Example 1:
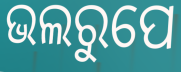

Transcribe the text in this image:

ଭଲରୁପେ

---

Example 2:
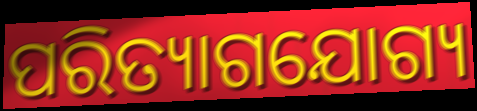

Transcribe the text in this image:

ପରିତ୍ୟାଗଯୋଗ୍ୟ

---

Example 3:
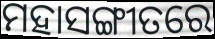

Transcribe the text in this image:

ମହାସଙ୍ଗୀତରେ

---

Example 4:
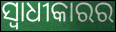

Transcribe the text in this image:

ସ୍ୱାଧୀକାରର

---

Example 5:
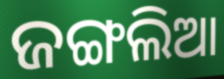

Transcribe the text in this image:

ଜଙ୍ଗଲିଆ